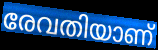
രേവതിയാണ്